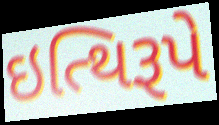
ઇત્થિરૂપે